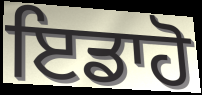
ਇਡਾਹੋ